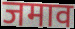
जमाव